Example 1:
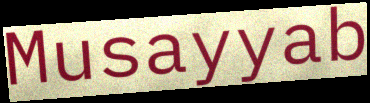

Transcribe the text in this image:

Musayyab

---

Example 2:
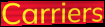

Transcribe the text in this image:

Carriers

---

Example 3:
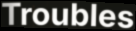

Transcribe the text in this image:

Troubles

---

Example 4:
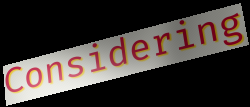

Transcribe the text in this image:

Considering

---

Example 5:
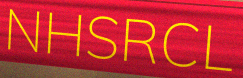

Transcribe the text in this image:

NHSRCL